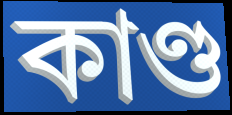
কাণ্ড